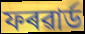
ফৰৱাৰ্ড